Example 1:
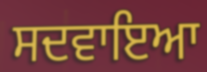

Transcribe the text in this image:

ਸਦਵਾਇਆ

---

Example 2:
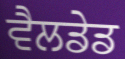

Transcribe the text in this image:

ਵੈਲਡੇਡ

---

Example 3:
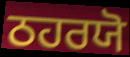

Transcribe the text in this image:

ਠਹਰਯੋ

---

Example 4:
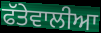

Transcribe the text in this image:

ਫੱਤੇਵਾਲੀਆ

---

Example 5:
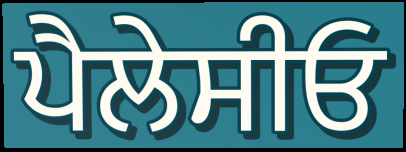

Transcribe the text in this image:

ਪੈਲੇਸੀਓ